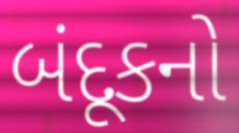
બંદૂકનો